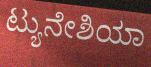
ಟ್ಯುನೇಶಿಯಾ